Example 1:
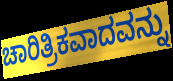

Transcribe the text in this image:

ಚಾರಿತ್ರಿಕವಾದವನ್ನು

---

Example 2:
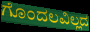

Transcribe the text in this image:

ಗೊಂದಲವಿಲ್ಲದ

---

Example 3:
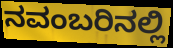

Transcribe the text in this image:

ನವಂಬರಿನಲ್ಲಿ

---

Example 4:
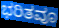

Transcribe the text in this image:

ಭರಿತವೂ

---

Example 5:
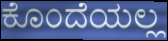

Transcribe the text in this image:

ಕೊಂದೆಯಲ್ಲ